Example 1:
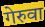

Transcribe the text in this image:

गेरुवा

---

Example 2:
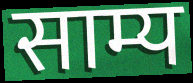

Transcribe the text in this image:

साम्‍य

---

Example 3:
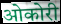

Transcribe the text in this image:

ओकोरी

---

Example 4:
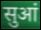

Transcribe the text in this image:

सुआं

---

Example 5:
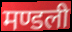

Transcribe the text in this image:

मण्डली